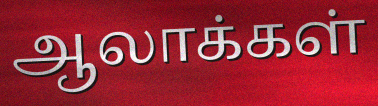
ஆலாக்கள்